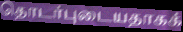
தொடர்புடையதாகக்